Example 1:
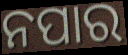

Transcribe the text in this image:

ନପାର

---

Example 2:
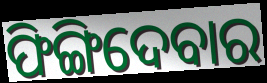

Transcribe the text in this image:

ଫିଙ୍ଗିଦେବାର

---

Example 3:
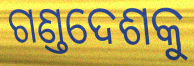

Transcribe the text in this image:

ଗଣ୍ଡଦେଶକୁ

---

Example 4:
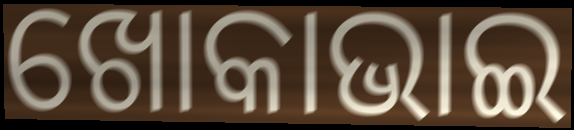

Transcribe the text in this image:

ଖୋକାଭାଇ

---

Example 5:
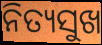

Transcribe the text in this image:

ନିତ୍ୟସୁଖ